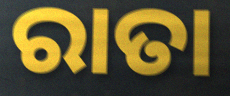
ରାତା